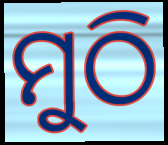
ମୁଠି